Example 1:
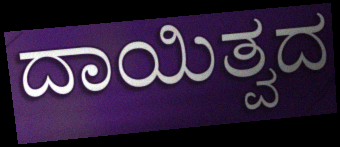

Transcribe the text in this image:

ದಾಯಿತ್ವದ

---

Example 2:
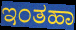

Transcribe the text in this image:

ಇಂತಹಾ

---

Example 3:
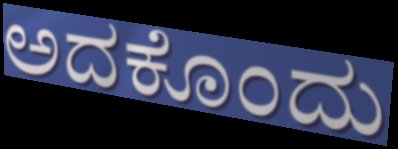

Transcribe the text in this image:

ಅದಕೊಂದು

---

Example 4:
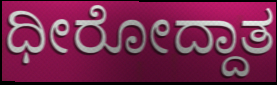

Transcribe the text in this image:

ಧೀರೋದ್ದಾತ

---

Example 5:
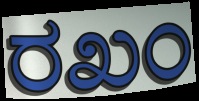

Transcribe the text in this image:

ರಖಂ